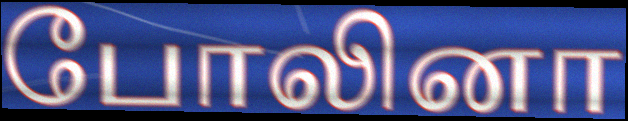
போலினா